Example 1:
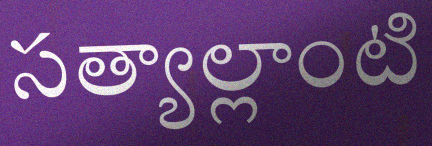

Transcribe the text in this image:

సత్యాల్లాంటి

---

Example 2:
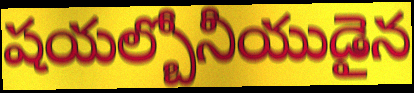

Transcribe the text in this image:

షయల్బోనీయుడైన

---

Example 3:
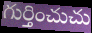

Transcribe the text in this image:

గుర్తించుచు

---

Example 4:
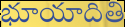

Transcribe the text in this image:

భూయాదితి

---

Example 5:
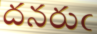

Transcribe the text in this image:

దనరుఁ